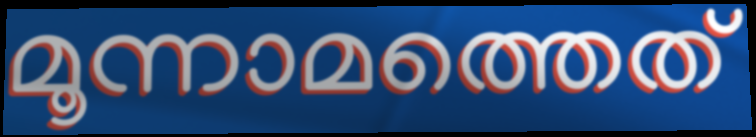
മൂന്നാമത്തെത്